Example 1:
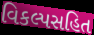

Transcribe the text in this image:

વિકલ્પસહિત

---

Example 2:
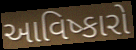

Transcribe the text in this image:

આવિષ્કારો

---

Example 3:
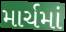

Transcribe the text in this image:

માર્ચમાં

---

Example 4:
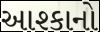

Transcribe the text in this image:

આશ્કાનો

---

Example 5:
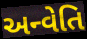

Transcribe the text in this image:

અન્વેતિ